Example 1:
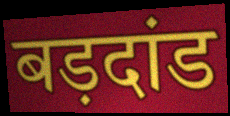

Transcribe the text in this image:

बड़दांड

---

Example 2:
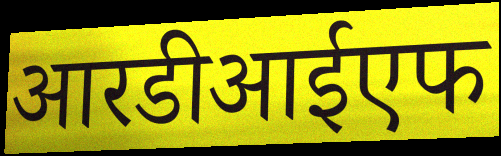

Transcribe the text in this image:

आरडीआईएफ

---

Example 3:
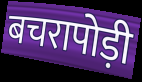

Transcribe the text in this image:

बचरापोड़ी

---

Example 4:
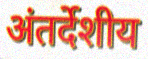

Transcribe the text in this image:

अंतर्देशीय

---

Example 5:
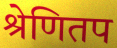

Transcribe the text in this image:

श्रेणितप